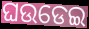
ଘଉଡେଇ